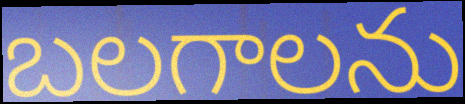
బలగాలను